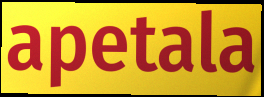
apetala